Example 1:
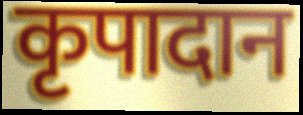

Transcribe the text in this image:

कृपादान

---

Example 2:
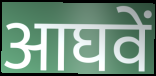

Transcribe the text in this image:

आघवें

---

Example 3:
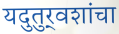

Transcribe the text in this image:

यदुतुर्वशांचा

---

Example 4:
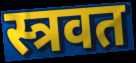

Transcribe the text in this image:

स्त्रवत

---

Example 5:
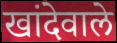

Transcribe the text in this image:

खांदेवाले